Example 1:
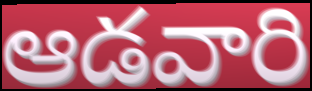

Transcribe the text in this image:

ఆడవారి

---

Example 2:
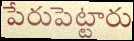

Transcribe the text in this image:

పేరుపెట్టారు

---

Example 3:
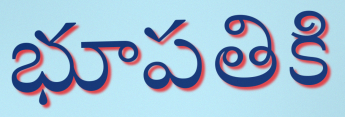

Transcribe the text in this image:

భూపతికి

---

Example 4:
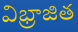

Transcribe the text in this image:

విభ్రాజిత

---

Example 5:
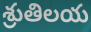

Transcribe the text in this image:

శ్రుతిలయ